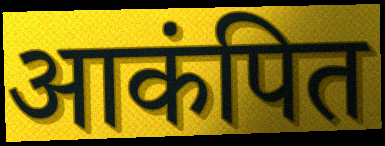
आकंपित